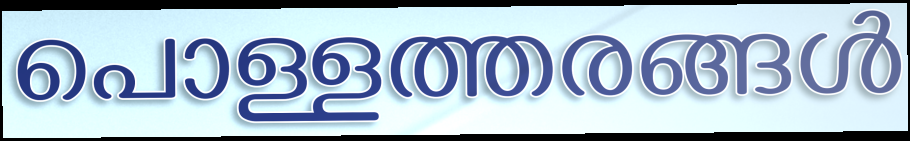
പൊള്ളത്തരങ്ങൾ